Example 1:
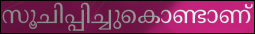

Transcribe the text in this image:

സൂചിപ്പിച്ചുകൊണ്ടാണ്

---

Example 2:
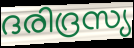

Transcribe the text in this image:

ദരിദ്രസ്യ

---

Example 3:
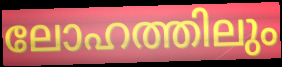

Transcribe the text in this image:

ലോഹത്തിലും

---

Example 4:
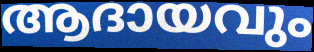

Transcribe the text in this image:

ആദായവും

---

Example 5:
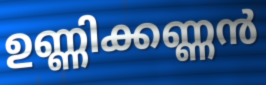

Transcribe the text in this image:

ഉണ്ണിക്കണ്ണൻ